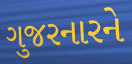
ગુજરનારને